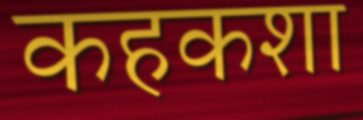
कहकशा